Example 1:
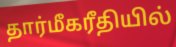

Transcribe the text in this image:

தார்மீகரீதியில்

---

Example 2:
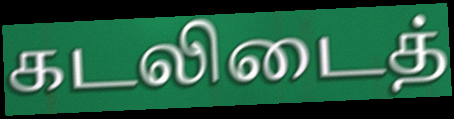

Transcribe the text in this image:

கடலிடைத்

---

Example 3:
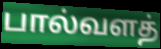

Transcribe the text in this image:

பால்வளத்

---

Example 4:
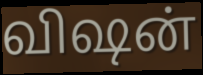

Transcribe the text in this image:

விஷன்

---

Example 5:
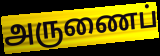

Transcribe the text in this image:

அருணைப்